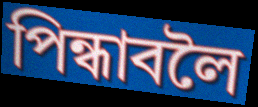
পিন্ধাবলৈ